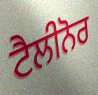
ਟੈਲੀਨੋਰ